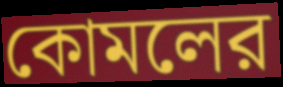
কোমলের